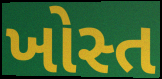
ખોસ્ત